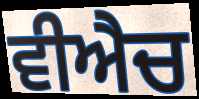
ਵੀਐਚ